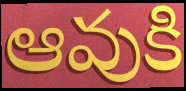
ఆవుకి